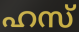
ഹസ്